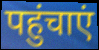
पहुंचाएं